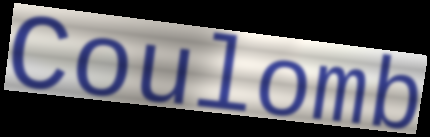
Coulomb